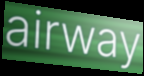
airway